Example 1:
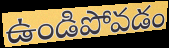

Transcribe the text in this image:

ఉండిపోవడం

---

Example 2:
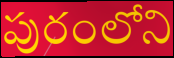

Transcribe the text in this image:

పురంలోని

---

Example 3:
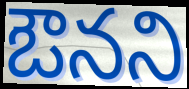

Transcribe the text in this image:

ఔనని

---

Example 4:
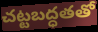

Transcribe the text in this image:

చట్టబద్ధతతో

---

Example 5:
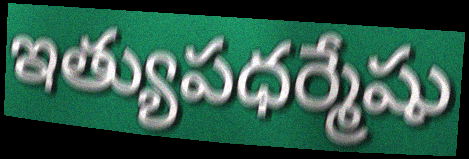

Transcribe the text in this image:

ఇత్యుపధర్మేషు